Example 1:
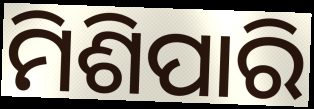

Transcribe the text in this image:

ମିଶିପାରି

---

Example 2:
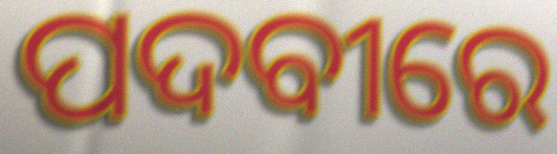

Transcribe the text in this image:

ପଦବୀରେ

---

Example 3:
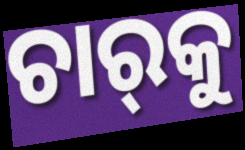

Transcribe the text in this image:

ଚାର୍‌କୁ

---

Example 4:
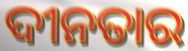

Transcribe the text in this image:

ଦୀନତାର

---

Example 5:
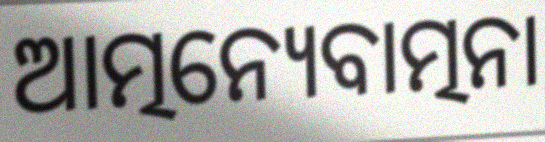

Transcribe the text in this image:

ଆତ୍ମନ୍ୟେବାତ୍ମନା